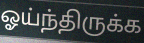
ஓய்ந்திருக்க